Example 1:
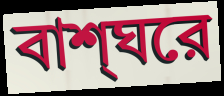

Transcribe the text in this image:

বাশ্ঘরে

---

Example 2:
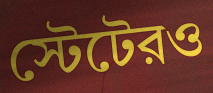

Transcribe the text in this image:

স্টেটেরও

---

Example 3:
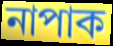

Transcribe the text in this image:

নাপাক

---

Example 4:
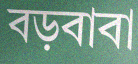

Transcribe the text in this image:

বড়বাবা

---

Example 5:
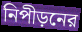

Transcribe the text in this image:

নিপীড়নের